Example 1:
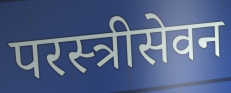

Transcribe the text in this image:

परस्त्रीसेवन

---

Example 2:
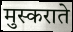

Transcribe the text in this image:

मुस्‍कराते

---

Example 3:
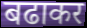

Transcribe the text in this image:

बढाकर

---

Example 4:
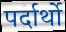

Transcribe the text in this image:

पर्दार्थो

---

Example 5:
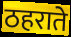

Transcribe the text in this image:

ठहराते